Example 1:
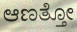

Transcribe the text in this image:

ಆಣತ್ತೋ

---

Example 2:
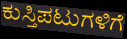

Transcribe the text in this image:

ಕುಸ್ತಿಪಟುಗಳಿಗೆ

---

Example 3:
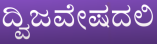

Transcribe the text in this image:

ದ್ವಿಜವೇಷದಲಿ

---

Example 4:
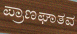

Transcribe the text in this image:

ಪ್ರಾಣಘಾತವ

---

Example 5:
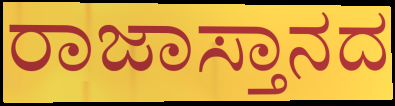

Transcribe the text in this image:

ರಾಜಾಸ್ತಾನದ